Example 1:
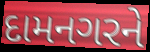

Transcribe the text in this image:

દામનગરને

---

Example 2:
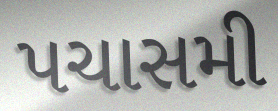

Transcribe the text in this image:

પચાસમી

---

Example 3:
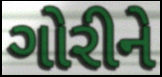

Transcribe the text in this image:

ગોરીને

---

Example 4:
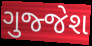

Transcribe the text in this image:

ગુજ્જેશ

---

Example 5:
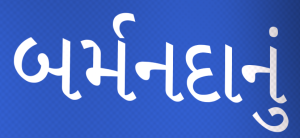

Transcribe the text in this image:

બર્મનદાનું